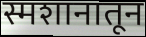
स्मशानातून